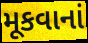
મૂકવાનાં